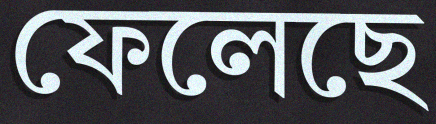
ফেলেছে